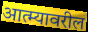
आत्म्यावरील